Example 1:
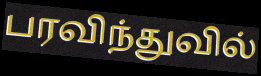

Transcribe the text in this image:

பரவிந்துவில்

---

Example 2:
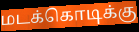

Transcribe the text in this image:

மடக்கொடிக்கு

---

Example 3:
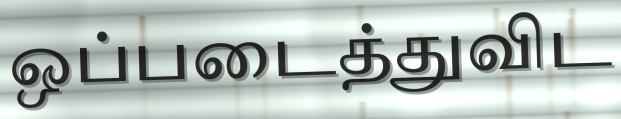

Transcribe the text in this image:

ஒப்படைத்துவிட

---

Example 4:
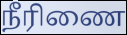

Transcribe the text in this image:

நீரிணை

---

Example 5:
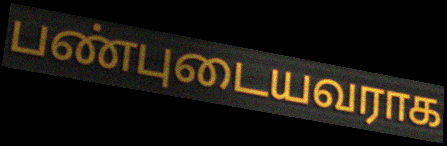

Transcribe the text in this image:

பண்புடையவராக